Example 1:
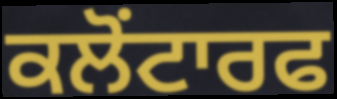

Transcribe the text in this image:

ਕਲੋਂਟਾਰਫ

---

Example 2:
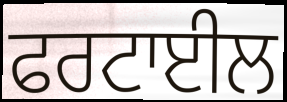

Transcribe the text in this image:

ਫਰਟਾਈਲ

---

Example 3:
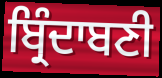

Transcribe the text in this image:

ਬ੍ਰਿੰਦਾਬਣੀ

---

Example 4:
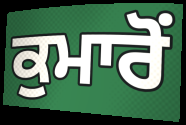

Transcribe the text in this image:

ਕੁਮਾਰੋਂ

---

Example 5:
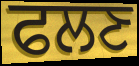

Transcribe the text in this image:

ਫਲਣ